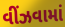
વીંઝવામાં